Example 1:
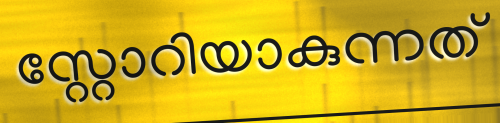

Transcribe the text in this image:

സ്റ്റോറിയാകുന്നത്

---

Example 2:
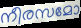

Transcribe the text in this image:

നീരസമോ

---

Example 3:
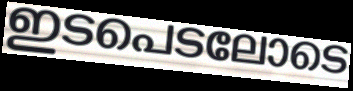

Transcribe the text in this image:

ഇടപെടലോടെ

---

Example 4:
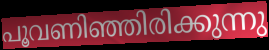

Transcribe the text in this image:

പൂവണിഞ്ഞിരിക്കുന്നു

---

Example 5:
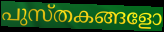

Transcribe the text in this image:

പുസ്തകങ്ങളോ